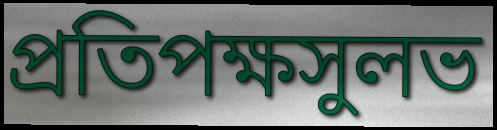
প্রতিপক্ষসুলভ